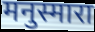
मनुस्मारा